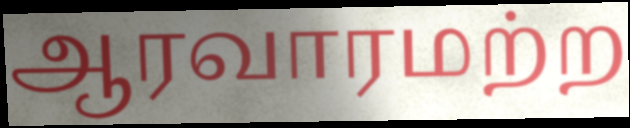
ஆரவாரமற்ற